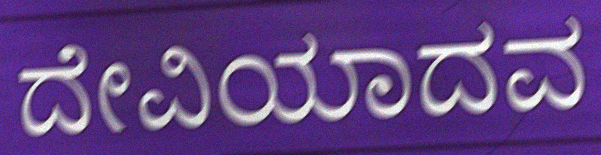
ದೇವಿಯಾದವ